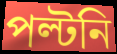
পল্টনি